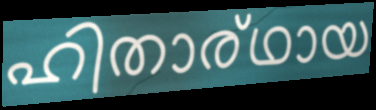
ഹിതാര്ഥായ